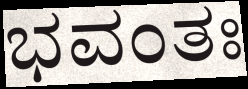
ಭವಂತಃ